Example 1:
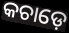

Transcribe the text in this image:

କଚାଡ଼େ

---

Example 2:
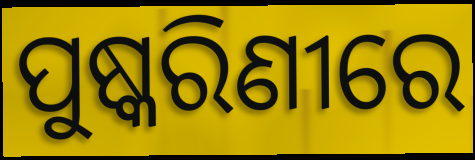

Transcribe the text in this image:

ପୁଷ୍କରିଣୀରେ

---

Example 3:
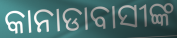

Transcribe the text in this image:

କାନାଡାବାସୀଙ୍କ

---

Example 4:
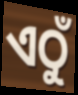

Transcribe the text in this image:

ଏଠୁଁ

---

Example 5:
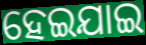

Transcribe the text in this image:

ହେଇଯାଇ